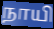
நாயி